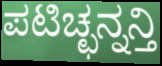
ಪಟಿಚ್ಛನ್ನನ್ತಿ